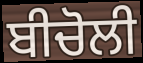
ਬੀਚੋਲੀ